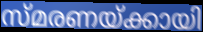
സ്മരണയ്ക്കായി